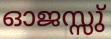
ഓജസ്സു്